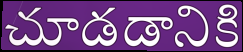
చూడడానికి